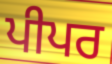
ਪੀਪਰ